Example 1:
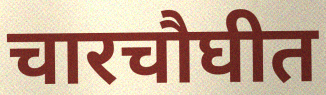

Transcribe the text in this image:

चारचौघीत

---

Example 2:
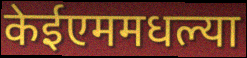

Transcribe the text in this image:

केईएममधल्या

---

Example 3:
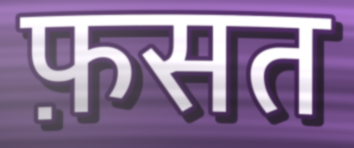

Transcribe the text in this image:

फ़सत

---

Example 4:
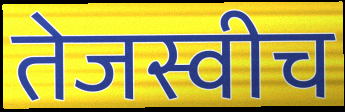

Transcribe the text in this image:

तेजस्वीच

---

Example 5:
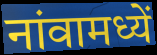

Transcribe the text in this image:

नांवामध्यें